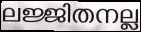
ലജ്ജിതനല്ല